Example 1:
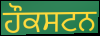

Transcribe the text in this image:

ਹੌਕਸਟਨ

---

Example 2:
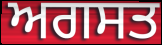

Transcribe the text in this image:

ਅਗਸਤ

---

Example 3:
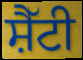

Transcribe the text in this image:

ਸ਼ੈੱਟੀ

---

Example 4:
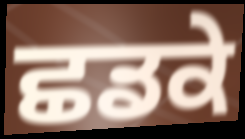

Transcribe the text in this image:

ਛਡਕੇ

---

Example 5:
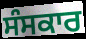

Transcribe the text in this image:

ਸੰਸਕਾਰ